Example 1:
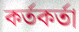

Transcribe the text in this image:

কর্তকর্তা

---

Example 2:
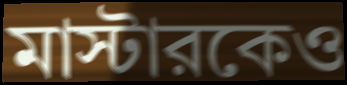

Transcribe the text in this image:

মাস্টারকেও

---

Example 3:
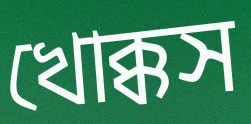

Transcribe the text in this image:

খোক্কস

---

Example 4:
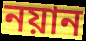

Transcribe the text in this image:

নয়ান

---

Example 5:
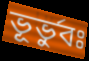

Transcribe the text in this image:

ভূর্ভুবঃ